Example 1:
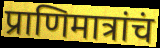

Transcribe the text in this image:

प्राणिमात्रांचं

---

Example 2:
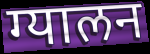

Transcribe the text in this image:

ग्यालन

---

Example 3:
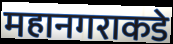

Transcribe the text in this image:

महानगराकडे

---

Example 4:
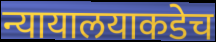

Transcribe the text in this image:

न्यायालयाकडेच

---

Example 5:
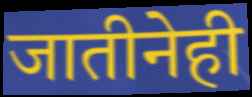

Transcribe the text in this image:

जातीनेही